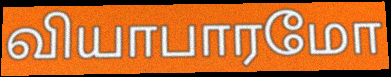
வியாபாரமோ